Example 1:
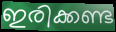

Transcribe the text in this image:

ഇരിക്കണ്ട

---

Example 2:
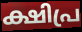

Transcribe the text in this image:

ക്ഷിപ്ര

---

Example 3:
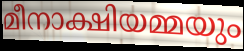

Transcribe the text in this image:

മീനാക്ഷിയമ്മയും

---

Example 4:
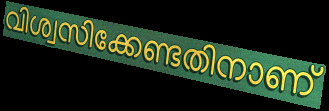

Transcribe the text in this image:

വിശ്വസിക്കേണ്ടതിനാണ്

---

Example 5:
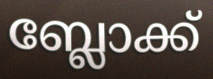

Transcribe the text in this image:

ബ്ലോക്ക്